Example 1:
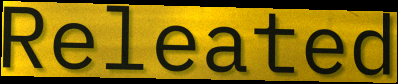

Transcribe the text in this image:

Releated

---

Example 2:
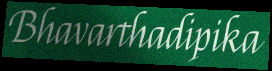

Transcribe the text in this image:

Bhavarthadipika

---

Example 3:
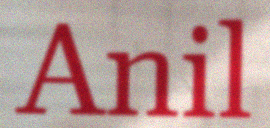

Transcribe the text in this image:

Anil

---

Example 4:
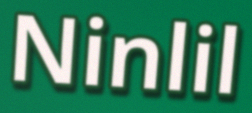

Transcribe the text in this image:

Ninlil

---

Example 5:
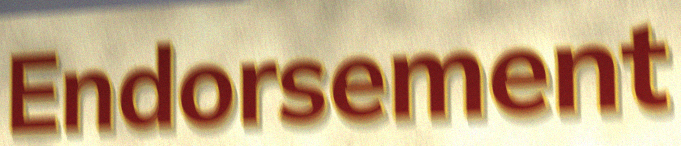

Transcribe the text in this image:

Endorsement